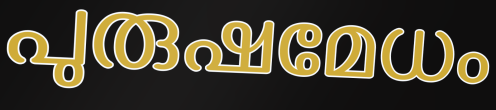
പുരുഷമേധം